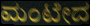
ಮಂಟೇದ